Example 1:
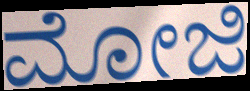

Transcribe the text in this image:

ಮೋಜಿ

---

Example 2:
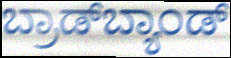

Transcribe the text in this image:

ಬ್ರಾಡ್‌ಬ್ಯಾಂಡ್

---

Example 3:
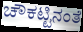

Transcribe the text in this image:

ಚೌಕಟ್ಟಿನಂತೆ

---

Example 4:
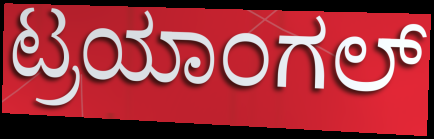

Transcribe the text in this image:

ಟ್ರಯಾಂಗಲ್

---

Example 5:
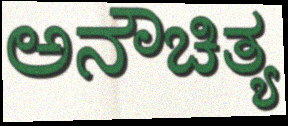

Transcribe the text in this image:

ಅನೌಚಿತ್ಯ